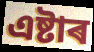
এষ্টাৰ